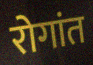
रोगांत